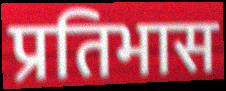
प्रतिभास